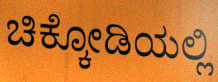
ಚಿಕ್ಕೋಡಿಯಲ್ಲಿ